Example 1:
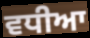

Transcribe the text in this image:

ਵਧੀਆ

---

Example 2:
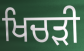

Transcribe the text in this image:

ਖਿਚੜੀ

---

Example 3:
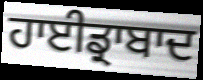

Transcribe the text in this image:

ਹਾਈਡ੍ਰਾਬਾਦ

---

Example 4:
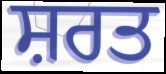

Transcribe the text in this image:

ਸ਼ਰਤ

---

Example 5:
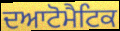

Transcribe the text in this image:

ਦਆਟੋਮੈਟਿਕ